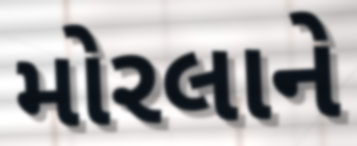
મોરલાને